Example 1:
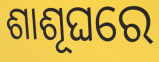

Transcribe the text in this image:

ଶାଶୂଘରେ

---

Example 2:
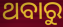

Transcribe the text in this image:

ଥବାରୁ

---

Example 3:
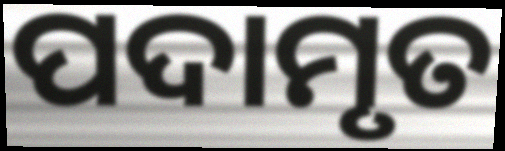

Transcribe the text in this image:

ପଦାମୃତ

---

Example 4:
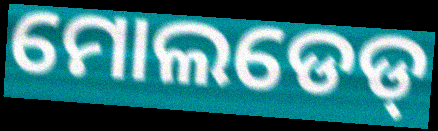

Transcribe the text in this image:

ମୋଲଡେଡ୍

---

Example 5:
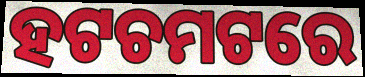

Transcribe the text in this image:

ହଟଚମଟରେ